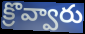
క్రొవ్వారు